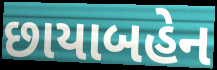
છાયાબહેન